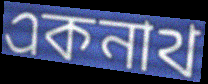
একনাথ